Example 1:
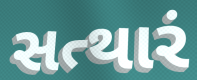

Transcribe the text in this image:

સત્થારં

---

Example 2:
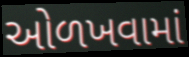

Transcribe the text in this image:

ઓળખવામાં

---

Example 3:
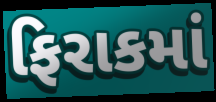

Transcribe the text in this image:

ફિરાકમાં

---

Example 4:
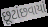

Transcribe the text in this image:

છૂટાંછવાયાં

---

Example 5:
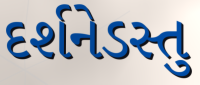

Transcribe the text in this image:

દર્શનેડસ્તુ